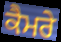
ਕੈਮਰੇ